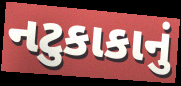
નટુકાકાનું